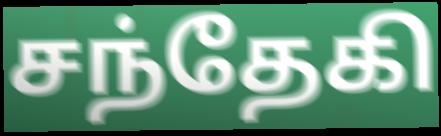
சந்தேகி